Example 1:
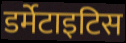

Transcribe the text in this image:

डर्मेटाइटिस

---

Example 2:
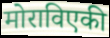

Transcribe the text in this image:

मोराविएकी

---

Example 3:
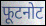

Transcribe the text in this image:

फूटनोट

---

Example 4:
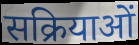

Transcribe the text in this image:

सक्रियाओं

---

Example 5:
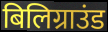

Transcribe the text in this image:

बिलिग्राउंड